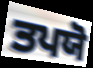
ਤਪਯੋ